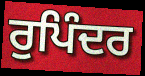
ਰੁਪਿੰਦਰ